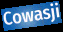
Cowasji